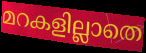
മറകളില്ലാതെ